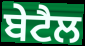
ਬੇਟੈਲ